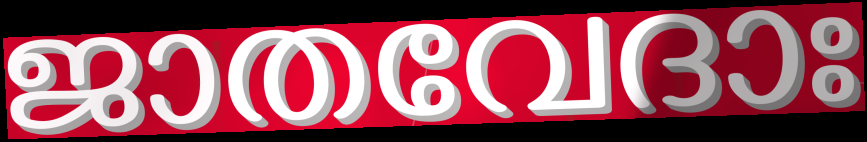
ജാതവേദാഃ